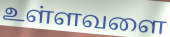
உள்ளவளை